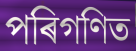
পৰিগণিত